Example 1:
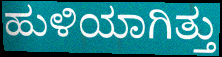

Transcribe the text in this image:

ಹುಳಿಯಾಗಿತ್ತು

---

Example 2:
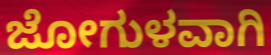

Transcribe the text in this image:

ಜೋಗುಳವಾಗಿ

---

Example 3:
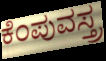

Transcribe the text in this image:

ಕೆಂಪುವಸ್ತ್ರ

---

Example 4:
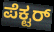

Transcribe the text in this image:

ಪೆಕ್ಟರ್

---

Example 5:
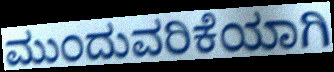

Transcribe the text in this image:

ಮುಂದುವರಿಕೆಯಾಗಿ